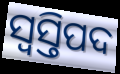
ସ୍ବସ୍ତିପଦ